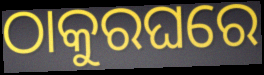
ଠାକୁରଘରେ